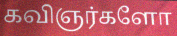
கவிஞர்களோ